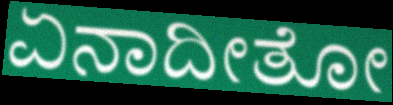
ಏನಾದೀತೋ